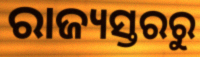
ରାଜ୍ୟସ୍ତରରୁ